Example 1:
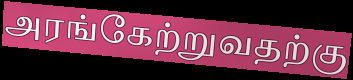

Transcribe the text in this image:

அரங்கேற்றுவதற்கு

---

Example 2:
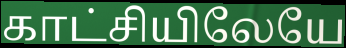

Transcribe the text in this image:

காட்சியிலேயே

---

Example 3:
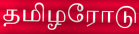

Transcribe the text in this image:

தமிழரோடு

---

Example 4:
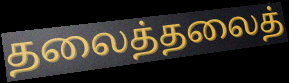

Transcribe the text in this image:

தலைத்தலைத்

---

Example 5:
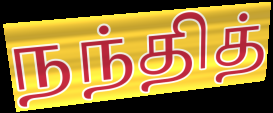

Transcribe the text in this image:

நந்தித்